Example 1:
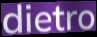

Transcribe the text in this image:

dietro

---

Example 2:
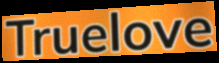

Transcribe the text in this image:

Truelove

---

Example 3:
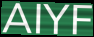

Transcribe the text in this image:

AIYF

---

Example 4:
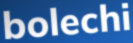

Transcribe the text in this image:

bolechi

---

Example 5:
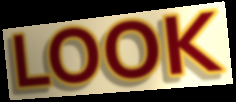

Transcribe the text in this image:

LOOK